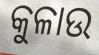
କୁଳାଉ